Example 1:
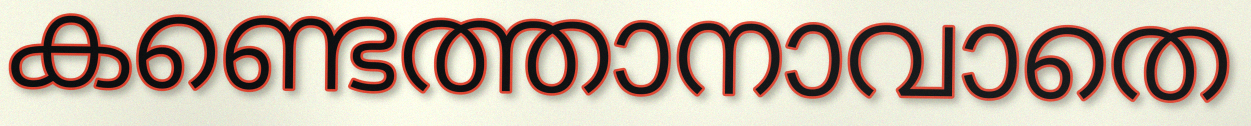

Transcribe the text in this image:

കണ്ടെത്താനാവാതെ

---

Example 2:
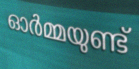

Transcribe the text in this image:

ഓർമ്മയുണ്ട്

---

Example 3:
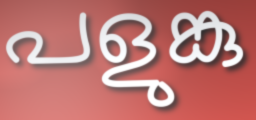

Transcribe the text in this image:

പളുങ്കു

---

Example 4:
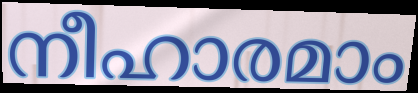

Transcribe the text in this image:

നീഹാരമാം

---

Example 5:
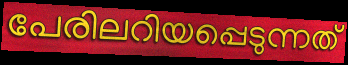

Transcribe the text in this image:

പേരിലറിയപ്പെടുന്നത്